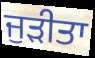
ਜੁੜੀਤਾ